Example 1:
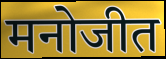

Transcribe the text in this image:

मनोजीत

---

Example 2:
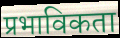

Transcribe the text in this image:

प्रभाविकता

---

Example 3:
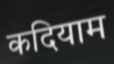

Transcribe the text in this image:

कदियाम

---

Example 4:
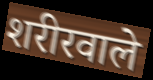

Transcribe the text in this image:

शरीरवाले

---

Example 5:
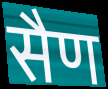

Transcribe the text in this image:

सैण